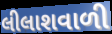
લીલાશવાળી